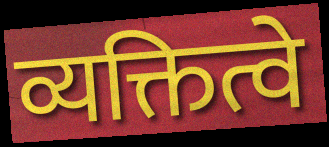
व्यक्तित्वे